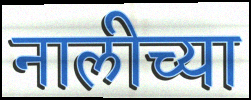
नालीच्या